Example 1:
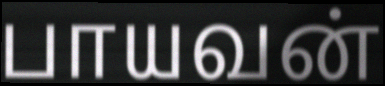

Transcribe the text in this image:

பாயவன்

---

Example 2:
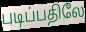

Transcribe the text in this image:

படிப்பதிலே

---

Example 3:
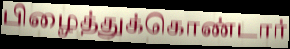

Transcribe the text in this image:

பிழைத்துக்கொண்டார்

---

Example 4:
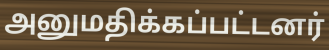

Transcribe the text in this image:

அனுமதிக்கப்பட்டனர்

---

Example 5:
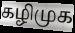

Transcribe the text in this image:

கழிமுக